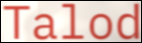
Talod